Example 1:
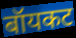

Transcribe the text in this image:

बॉयकट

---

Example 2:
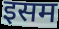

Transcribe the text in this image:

इसम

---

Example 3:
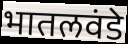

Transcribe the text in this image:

भातलवंडे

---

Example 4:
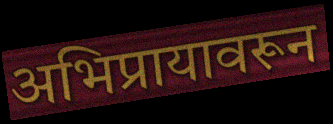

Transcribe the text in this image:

अभिप्रायावरून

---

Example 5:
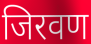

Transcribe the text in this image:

जिरवण